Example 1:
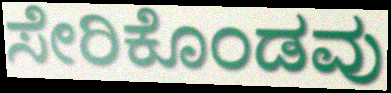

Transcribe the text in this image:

ಸೇರಿಕೊಂಡವು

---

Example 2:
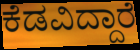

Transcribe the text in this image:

ಕೆಡವಿದ್ದಾರೆ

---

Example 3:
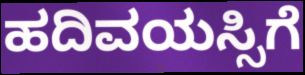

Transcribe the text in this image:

ಹದಿವಯಸ್ಸಿಗೆ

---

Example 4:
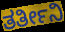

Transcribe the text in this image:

ತರ್ತೀನಿ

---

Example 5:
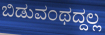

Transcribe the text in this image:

ಬಿಡುವಂಥದ್ದಲ್ಲ